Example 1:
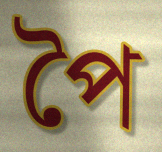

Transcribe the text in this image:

পৈ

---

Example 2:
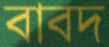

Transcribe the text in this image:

বাবদ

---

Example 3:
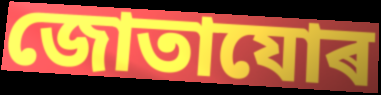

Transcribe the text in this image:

জোতাযোৰ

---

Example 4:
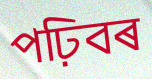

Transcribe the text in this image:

পঢ়িবৰ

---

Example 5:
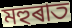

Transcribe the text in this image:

মহুৰাত